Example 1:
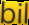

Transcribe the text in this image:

bil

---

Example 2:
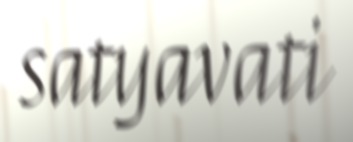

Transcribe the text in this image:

satyavati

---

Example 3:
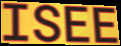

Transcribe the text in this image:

ISEE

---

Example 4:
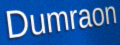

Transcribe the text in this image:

Dumraon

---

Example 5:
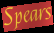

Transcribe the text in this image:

Spears